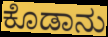
ಕೊಡಾನು